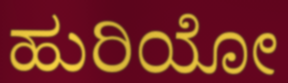
ಹುರಿಯೋ